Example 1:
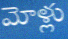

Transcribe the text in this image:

మోళ్లు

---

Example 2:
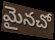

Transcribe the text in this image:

మైనచో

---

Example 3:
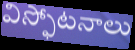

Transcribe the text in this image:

విస్ఫోటనాలు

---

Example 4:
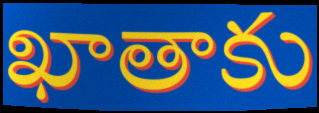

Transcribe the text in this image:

ఖాతాకు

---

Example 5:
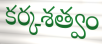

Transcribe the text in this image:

కర్కశత్వం